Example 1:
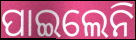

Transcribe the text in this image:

ପାଇଲେନି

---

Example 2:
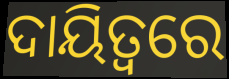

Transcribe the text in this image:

ଦାୟିତ୍ୱରେ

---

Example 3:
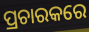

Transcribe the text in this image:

ପ୍ରଚାରକରେ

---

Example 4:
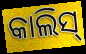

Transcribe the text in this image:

କାଲିସ୍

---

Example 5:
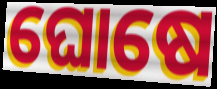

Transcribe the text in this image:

ଘୋଷେ